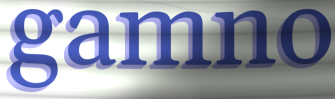
gamno